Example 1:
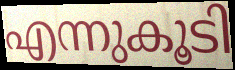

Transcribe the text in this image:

എന്നുകൂടി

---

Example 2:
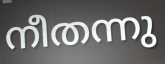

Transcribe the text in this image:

നീതന്നു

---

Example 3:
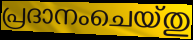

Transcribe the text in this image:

പ്രദാനംചെയ്തു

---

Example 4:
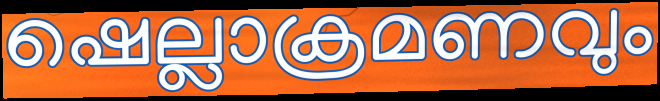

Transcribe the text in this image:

ഷെല്ലാക്രമണവും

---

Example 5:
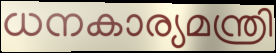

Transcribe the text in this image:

ധനകാര്യമന്ത്രി